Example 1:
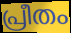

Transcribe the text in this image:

പ്രീതം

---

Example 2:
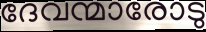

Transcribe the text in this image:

ദേവന്മാരോടു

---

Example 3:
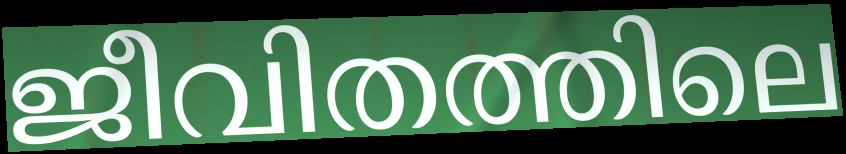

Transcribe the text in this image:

ജീവിതത്തിലെ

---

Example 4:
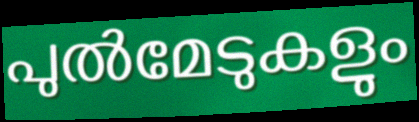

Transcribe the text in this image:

പുൽമേടുകളും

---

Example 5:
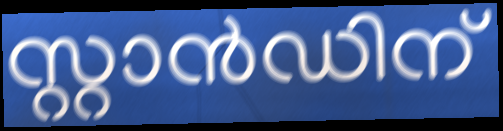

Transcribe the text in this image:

സ്റ്റാൻഡിന്